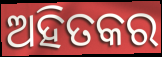
ଅହିତକର